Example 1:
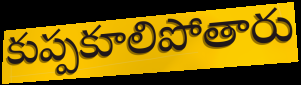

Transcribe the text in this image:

కుప్పకూలిపోతారు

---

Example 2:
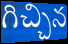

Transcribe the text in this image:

గిచ్చిన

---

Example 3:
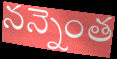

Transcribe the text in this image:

నన్నెంత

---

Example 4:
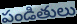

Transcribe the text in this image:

పండితులు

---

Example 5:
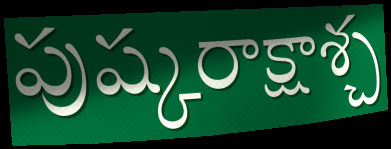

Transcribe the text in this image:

పుష్కరాక్షాశ్చ